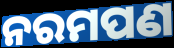
ନରମପଣ